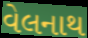
વેલનાથ